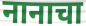
नानाचा